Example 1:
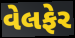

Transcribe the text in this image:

વેલફેર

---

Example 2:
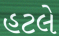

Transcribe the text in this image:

હટલે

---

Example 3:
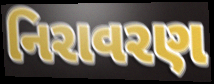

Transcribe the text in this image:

નિરાવરણ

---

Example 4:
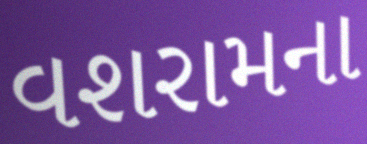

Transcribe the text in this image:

વશરામના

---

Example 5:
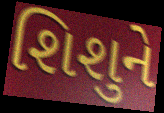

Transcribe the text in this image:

શિશુને